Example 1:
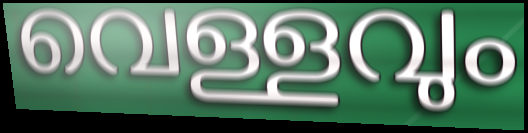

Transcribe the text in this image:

വെള്ളവും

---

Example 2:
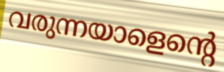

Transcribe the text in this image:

വരുന്നയാളെന്റെ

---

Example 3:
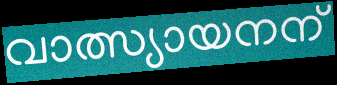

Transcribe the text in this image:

വാത്സ്യായനന്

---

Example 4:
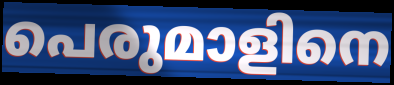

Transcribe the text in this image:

പെരുമാളിനെ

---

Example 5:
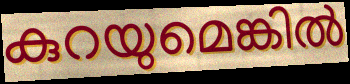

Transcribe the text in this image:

കുറയുമെങ്കിൽ